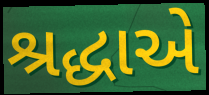
શ્રદ્ધાએ